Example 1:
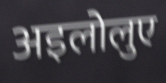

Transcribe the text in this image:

अइलोलुए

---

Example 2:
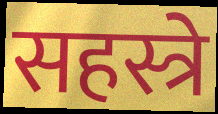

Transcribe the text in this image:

सहस्त्रे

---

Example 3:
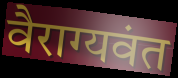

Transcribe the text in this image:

वैराग्यवंत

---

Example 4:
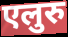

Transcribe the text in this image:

एलुरु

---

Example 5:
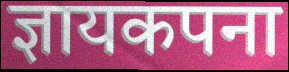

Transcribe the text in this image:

ज्ञायकपना